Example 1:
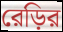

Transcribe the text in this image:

রেড়ির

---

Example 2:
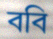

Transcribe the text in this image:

ববি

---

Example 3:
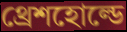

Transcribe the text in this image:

থ্রেশহোল্ডে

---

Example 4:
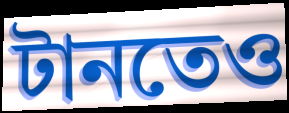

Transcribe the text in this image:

টানতেও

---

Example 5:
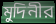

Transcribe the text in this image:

মুদিনীর